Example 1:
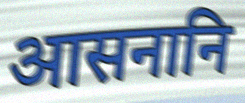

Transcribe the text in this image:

आसनानि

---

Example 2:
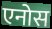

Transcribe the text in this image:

एनोस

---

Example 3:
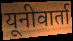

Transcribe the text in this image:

यूनीवार्ता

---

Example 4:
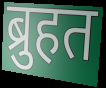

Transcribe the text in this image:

ब्रुहत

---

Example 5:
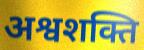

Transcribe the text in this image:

अश्वशक्ति